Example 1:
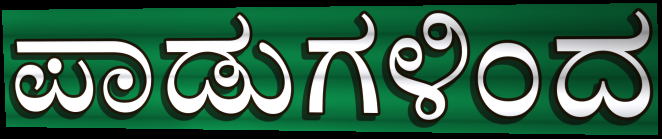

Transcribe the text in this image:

ಪಾಡುಗಳಿಂದ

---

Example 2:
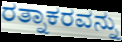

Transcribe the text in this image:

ರತ್ನಾಕರವನ್ನು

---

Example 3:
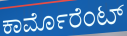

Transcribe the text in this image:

ಕಾರ್ಮೊರೆಂಟ್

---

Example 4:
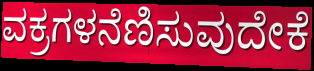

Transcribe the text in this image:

ವಕ್ರಗಳನೆಣಿಸುವುದೇಕೆ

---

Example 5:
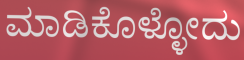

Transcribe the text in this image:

ಮಾಡಿಕೊಳ್ಳೋದು